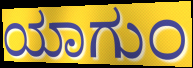
ಯಾಗುಂ